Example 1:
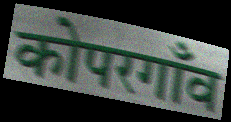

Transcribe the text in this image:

कोपरगाँव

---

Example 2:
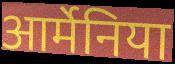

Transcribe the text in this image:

आर्मेनिया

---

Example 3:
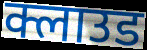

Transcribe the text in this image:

क्लाउड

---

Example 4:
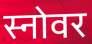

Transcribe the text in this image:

स्नोवर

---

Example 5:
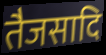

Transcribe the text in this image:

तैजसादि